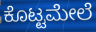
ಕೊಟ್ಟಮೇಲೆ